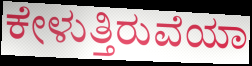
ಕೇಳುತ್ತಿರುವೆಯಾ